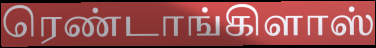
ரெண்டாங்கிளாஸ்